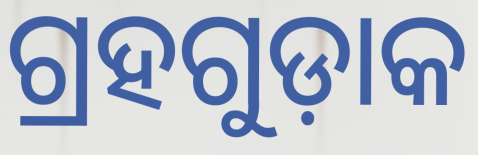
ଗ୍ରହଗୁଡ଼ାକ